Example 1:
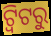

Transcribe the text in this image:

ଟ୍ବିଟରୁ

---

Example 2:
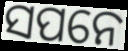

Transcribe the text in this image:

ସପନେ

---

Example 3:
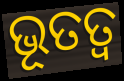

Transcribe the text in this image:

ଭୂତତ୍ୱ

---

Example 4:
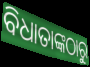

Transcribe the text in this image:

ବିଧାତାଙ୍କଠାରୁ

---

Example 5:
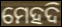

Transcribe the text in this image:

ମେହଦି